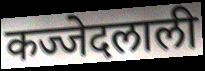
कज्जेदलाली